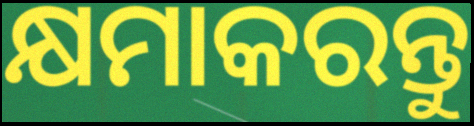
କ୍ଷମାକରନ୍ତୁ